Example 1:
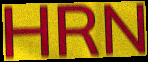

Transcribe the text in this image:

HRN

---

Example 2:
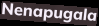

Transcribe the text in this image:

Nenapugala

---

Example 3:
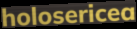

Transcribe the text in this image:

holosericea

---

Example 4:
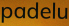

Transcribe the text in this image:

padelu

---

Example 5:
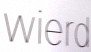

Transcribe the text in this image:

wierd